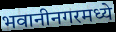
भवानीनगरमध्ये